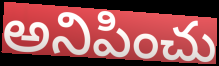
అనిపించు